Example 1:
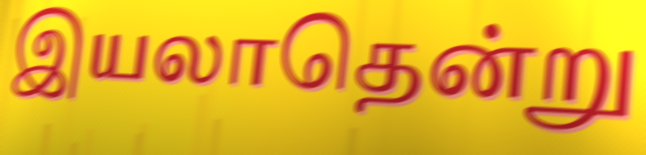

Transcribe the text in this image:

இயலாதென்று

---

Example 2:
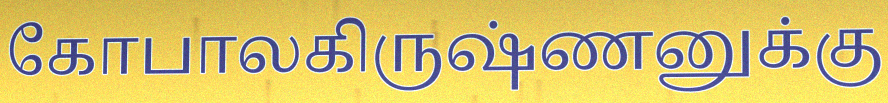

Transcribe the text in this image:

கோபாலகிருஷ்ணனுக்கு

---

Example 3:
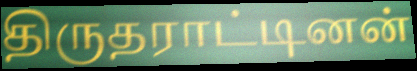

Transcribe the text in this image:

திருதராட்டினன்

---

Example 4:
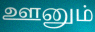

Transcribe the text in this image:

ஊனும்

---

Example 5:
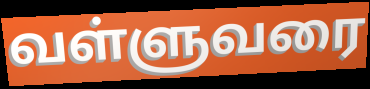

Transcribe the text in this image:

வள்ளுவரை